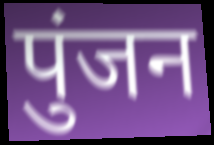
पुंजन